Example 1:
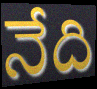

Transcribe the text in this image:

నేది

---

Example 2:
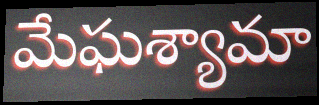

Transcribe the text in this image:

మేఘశ్యామా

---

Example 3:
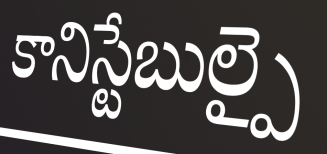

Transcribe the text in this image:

కానిస్టేబుల్పై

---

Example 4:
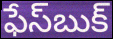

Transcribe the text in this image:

ఫేస్‌బుక్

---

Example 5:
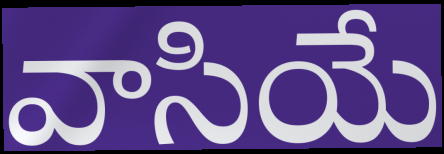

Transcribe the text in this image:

వాసియే